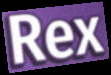
Rex